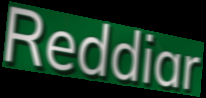
Reddiar